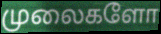
முலைகளோ